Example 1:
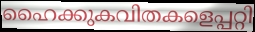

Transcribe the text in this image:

ഹൈക്കുകവിതകളെപ്പറ്റി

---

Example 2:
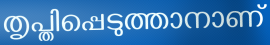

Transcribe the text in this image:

തൃപ്തിപ്പെടുത്താനാണ്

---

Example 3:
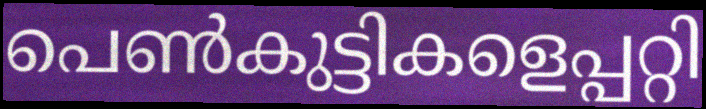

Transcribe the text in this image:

പെൺകുട്ടികളെപ്പറ്റി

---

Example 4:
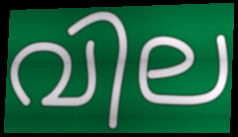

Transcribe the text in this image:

വില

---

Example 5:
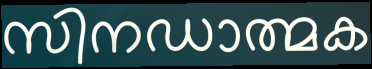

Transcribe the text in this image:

സിനഡാത്മക